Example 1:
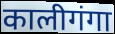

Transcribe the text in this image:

कालीगंगा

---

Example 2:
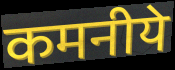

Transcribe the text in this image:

कमनीये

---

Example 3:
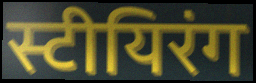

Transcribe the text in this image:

स्टीयिरंग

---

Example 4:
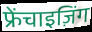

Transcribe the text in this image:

फ्रेंचाइज़िंग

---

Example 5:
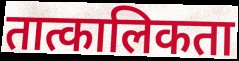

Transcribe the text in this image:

तात्कालिकता